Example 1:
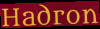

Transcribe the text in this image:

Hadron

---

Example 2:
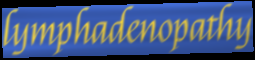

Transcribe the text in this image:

lymphadenopathy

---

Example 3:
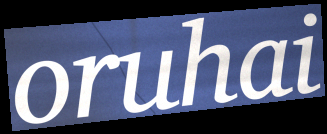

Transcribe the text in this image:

oruhai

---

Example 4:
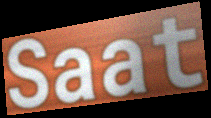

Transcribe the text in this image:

Saat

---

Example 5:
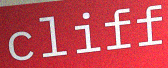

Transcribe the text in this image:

cliff